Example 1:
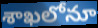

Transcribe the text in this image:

శాఖలోనూ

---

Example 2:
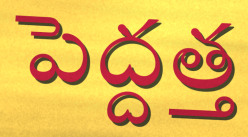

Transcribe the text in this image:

పెద్దత్త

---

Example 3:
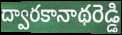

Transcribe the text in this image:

ద్వారకానాథరెడ్డి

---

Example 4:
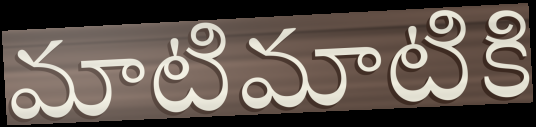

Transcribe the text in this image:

మాటిమాటికి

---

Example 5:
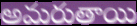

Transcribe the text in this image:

అమరుతాయి